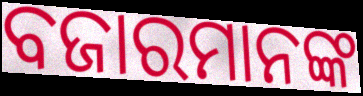
ବଜାରମାନଙ୍କ